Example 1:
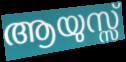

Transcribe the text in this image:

ആയുസ്സ്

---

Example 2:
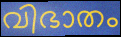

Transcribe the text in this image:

വിഭാതം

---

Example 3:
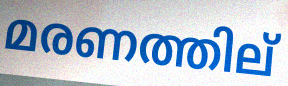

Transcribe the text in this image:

മരണത്തില്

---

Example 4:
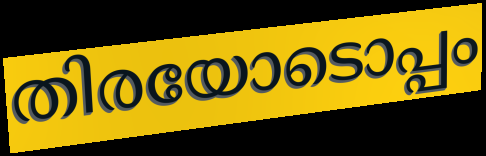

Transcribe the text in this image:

തിരയോടൊപ്പം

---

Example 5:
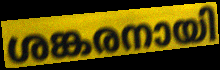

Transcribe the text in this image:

ശങ്കരനായി